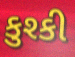
કુશ્કી